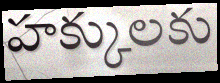
హక్కులకు